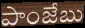
పాంజేబు